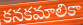
కనకమాలికా